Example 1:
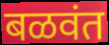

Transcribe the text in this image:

बळवंत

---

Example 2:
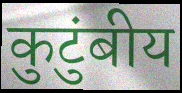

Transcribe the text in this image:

कुटुंबीय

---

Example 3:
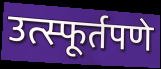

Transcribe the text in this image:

उत्स्फूर्तपणे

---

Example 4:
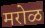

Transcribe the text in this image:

मरोळ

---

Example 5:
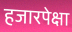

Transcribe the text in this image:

हजारपेक्षा